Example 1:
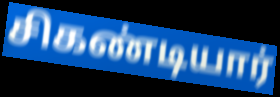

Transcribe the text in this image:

சிகண்டியார்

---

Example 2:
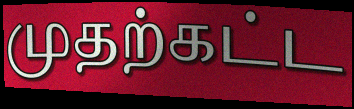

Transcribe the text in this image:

முதற்கட்ட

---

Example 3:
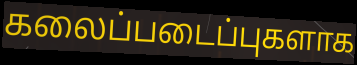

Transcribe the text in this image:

கலைப்படைப்புகளாக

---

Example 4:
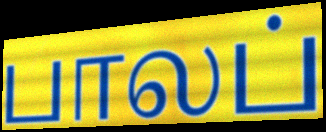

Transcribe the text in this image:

பாலப்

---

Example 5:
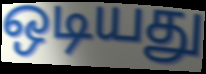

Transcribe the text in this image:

ஒடியது